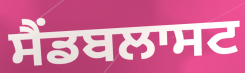
ਸੈਂਡਬਲਾਸਟ